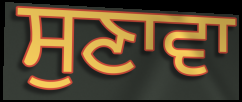
ਸੁਣਾਵਾ